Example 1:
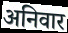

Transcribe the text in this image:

अनिवार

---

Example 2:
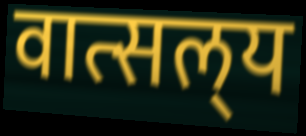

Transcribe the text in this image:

वात्सल्य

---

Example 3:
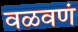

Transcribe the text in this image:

वळवणं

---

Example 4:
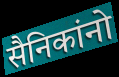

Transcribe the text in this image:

सैनिकांनो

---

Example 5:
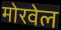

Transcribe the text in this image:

मोरवेल